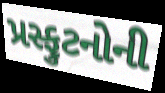
પ્રસ્ફુટનોની